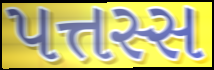
પત્તસ્સ